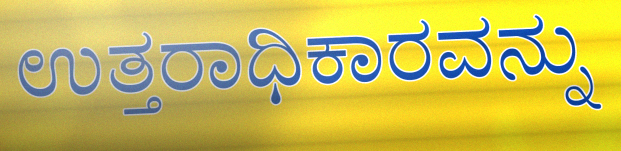
ಉತ್ತರಾಧಿಕಾರವನ್ನು